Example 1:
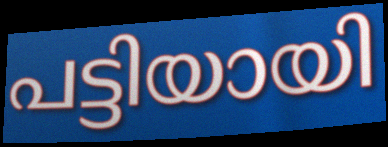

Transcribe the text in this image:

പട്ടിയായി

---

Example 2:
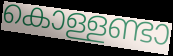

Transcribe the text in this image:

കൊള്ളണ്ടാ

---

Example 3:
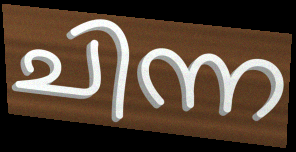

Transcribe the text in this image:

ചിന്ന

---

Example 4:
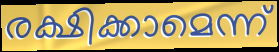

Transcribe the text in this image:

രക്ഷിക്കാമെന്ന്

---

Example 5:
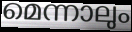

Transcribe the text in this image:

മെന്നാലും